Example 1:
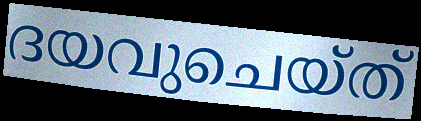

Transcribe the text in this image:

ദയവുചെയ്ത്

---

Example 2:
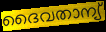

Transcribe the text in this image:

ദൈവതാന്യ്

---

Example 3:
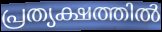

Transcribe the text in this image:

പ്രത്യക്ഷത്തിൽ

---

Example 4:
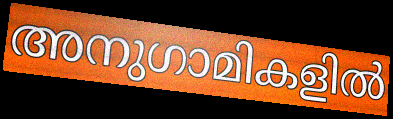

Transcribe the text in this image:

അനുഗാമികളിൽ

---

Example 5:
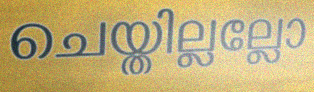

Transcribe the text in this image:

ചെയ്തില്ലല്ലോ